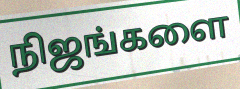
நிஜங்களை